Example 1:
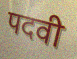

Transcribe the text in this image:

पदवी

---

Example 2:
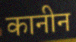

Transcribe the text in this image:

कानीन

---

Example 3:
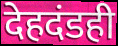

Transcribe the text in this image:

देहदंडही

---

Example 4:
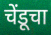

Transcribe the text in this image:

चेंडूचा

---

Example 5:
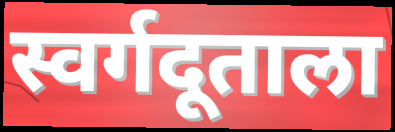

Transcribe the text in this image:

स्वर्गदूताला